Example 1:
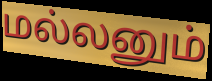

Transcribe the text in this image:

மல்லனும்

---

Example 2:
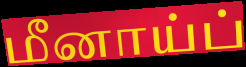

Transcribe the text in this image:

மீனாய்ப்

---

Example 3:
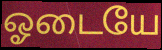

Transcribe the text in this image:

ஓடையே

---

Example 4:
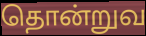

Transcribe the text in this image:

தொன்றுவ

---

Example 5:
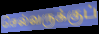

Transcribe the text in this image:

செல்வருக்குப்